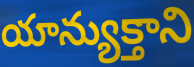
యాన్యుక్తాని